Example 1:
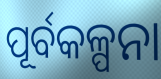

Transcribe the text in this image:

ପୂର୍ବକଳ୍ପନା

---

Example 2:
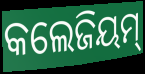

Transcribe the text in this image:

କଲେଜିୟମ୍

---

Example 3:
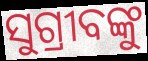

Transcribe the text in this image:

ସୁଗ୍ରୀବଙ୍କୁ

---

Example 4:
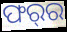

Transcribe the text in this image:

ଫର୍‌ର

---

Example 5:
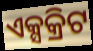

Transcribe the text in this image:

ଏକ୍ସକ୍ରିଟ